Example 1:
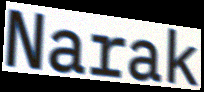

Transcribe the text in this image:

Narak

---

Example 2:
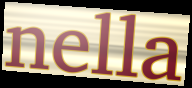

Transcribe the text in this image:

nella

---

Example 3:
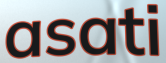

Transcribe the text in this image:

asati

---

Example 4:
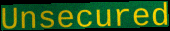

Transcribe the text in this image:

Unsecured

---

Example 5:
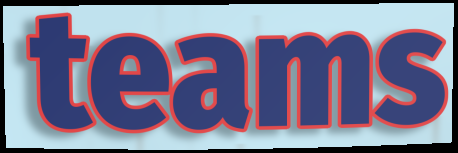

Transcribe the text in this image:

teams